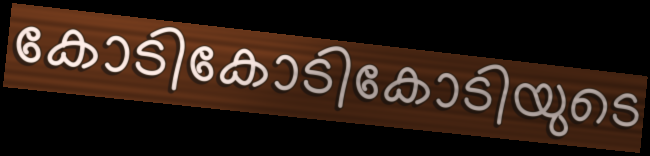
കോടികോടികോടിയുടെ